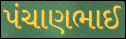
પંચાણભાઈ